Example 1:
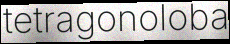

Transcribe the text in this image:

tetragonoloba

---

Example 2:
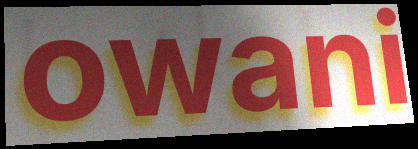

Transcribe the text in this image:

owani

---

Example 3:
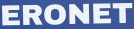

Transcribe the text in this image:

ERONET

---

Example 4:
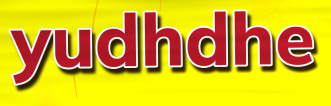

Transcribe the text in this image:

yudhdhe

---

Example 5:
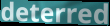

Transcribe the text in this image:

deterred